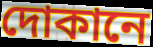
দোকানে